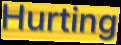
Hurting